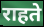
राहते